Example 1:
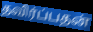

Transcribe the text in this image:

தவிர்ப்பதன்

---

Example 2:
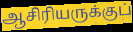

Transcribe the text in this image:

ஆசிரியருக்குப்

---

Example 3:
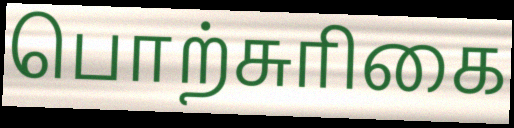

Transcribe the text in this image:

பொற்சுரிகை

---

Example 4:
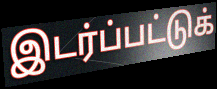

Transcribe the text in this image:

இடர்ப்பட்டுக்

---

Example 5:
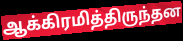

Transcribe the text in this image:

ஆக்கிரமித்திருந்தன